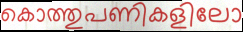
കൊത്തുപണികളിലോ